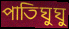
পাতিঘুঘু